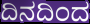
ದಿನದಿಂದ